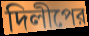
দিলীপের